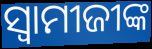
ସ୍ଵାମୀଜୀଙ୍କ